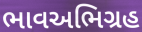
ભાવઅભિગ્રહ